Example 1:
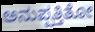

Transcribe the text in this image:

ಅನುಪ್ಪತ್ತಿತೋ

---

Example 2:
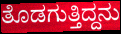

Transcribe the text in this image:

ತೊಡಗುತ್ತಿದ್ದನು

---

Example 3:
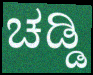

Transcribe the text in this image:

ಚಡ್ಡಿ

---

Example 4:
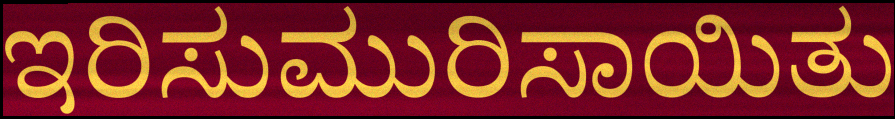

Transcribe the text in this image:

ಇರಿಸುಮುರಿಸಾಯಿತು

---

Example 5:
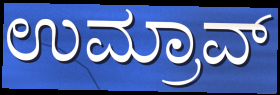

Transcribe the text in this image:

ಉಮ್ರಾವ್